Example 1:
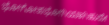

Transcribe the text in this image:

ಭೋಗೋಪಭೋಗಿಯಾಗಿಹುದೇ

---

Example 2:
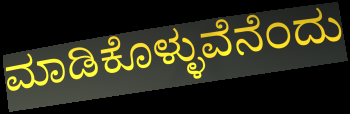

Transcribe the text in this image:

ಮಾಡಿಕೊಳ್ಳುವೆನೆಂದು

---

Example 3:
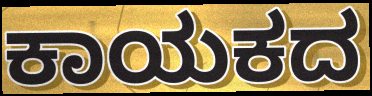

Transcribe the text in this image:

ಕಾಯಕದ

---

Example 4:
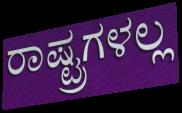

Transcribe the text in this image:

ರಾಷ್ಟ್ರಗಳಲ್ಲ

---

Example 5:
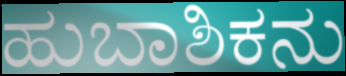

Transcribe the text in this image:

ಹುಬಾಶಿಕನು